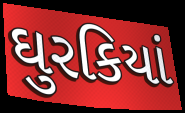
ઘુરકિયાં